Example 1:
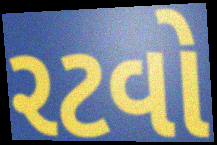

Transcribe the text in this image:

રટવો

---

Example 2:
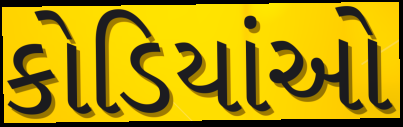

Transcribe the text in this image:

કોડિયાંઓ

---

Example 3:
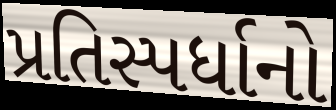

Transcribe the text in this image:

પ્રતિસ્પર્ધાનો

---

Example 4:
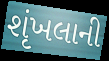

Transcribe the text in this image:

શૃંખલાની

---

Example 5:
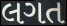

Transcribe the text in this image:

લગત